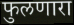
फुलणारा